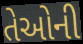
તેઓની